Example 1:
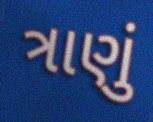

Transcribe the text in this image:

ત્રાણું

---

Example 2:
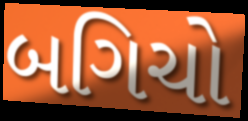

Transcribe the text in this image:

બગિચો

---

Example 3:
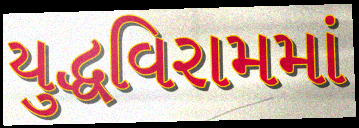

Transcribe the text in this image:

યુદ્ધવિરામમાં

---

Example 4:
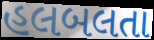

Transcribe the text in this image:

હલબલતા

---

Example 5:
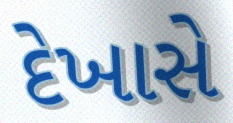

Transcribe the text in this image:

દેખાસે